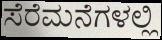
ಸೆರೆಮನೆಗಳಲ್ಲಿ